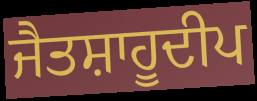
ਜੈਤਸ਼ਾਹੂਦੀਪ